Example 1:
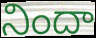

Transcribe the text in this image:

నిందా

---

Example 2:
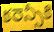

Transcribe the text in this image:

కరెన్సీకి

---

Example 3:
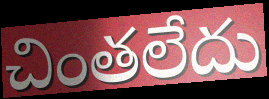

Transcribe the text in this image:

చింతలేదు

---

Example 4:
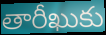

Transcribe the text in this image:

తారీఖుకు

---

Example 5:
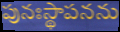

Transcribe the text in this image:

పునఃస్థాపనను